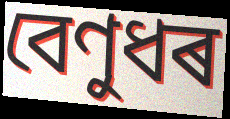
বেণুধৰ